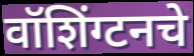
वॉशिंग्टनचे